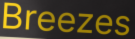
Breezes